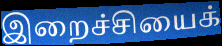
இறைச்சியைக்